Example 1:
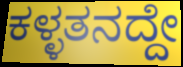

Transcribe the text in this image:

ಕಳ್ಳತನದ್ದೇ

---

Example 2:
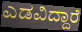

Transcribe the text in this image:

ಎಡವಿದ್ದಾರೆ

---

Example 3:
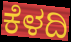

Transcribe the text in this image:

ಕೆಳದಿ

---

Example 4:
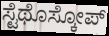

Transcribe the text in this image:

ಸ್ಟೆಥೊಸ್ಕೋಪ್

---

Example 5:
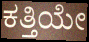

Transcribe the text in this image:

ಕತ್ತಿಯೇ